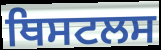
ਥਿਸਟਲਸ